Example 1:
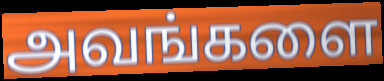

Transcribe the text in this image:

அவங்களை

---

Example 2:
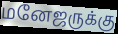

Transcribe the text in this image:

மனேஜருக்கு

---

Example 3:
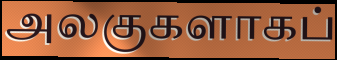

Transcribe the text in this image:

அலகுகளாகப்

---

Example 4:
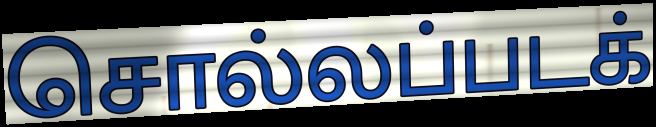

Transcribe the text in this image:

சொல்லப்படக்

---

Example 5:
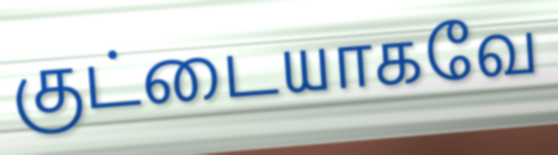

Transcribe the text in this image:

குட்டையாகவே